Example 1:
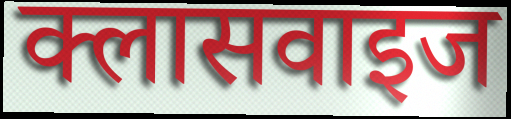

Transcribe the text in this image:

क्लासवाइज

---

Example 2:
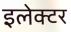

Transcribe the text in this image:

इलेक्टर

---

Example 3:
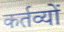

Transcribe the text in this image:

कर्तव्यों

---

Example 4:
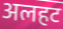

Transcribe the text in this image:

अलहट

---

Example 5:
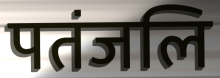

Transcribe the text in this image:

पतंजलि